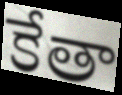
కేతా